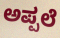
ಅಪ್ಪಲೆ